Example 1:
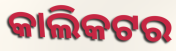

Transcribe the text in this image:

କାଲିକଟର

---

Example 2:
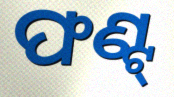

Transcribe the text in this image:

ଫଣ୍ଟ୍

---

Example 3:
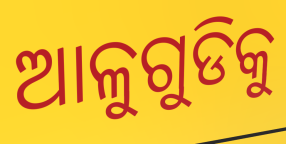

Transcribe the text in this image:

ଆଳୁଗୁଡିକୁ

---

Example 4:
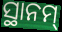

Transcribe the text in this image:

ସ୍ଥାନମ୍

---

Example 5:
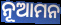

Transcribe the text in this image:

ନୂଆମନ